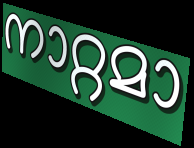
നാറ്റമാ